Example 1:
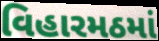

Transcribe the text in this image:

વિહારમઠમાં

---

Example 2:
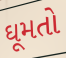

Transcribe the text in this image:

ઘૂમતો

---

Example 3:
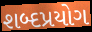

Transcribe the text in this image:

શબ્દપ્રયોગ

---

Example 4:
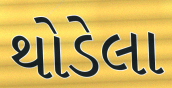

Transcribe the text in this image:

થોડેલા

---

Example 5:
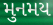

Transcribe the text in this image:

મુનમય